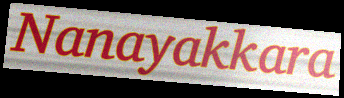
Nanayakkara